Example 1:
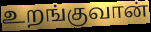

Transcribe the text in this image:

உறங்குவான்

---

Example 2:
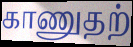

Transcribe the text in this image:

காணுதற்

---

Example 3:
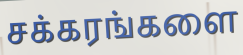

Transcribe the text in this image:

சக்கரங்களை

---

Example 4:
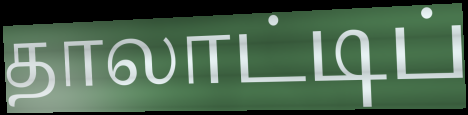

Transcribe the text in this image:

தாலாட்டிப்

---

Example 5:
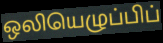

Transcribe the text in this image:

ஒலியெழுப்பிப்